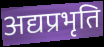
अद्यप्रभृति